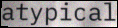
atypical